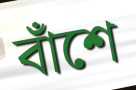
বাঁশে